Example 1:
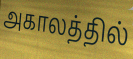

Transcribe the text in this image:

அகாலத்தில்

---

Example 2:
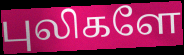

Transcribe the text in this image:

புலிகளே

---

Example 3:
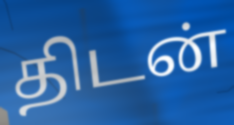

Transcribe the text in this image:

திடன்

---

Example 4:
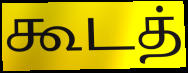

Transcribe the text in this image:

கூடத்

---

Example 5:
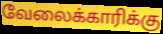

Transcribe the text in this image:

வேலைக்காரிக்கு